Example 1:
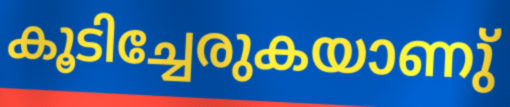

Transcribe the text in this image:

കൂടിച്ചേരുകയാണു്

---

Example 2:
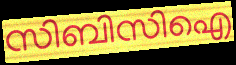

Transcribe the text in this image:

സിബിസിഐ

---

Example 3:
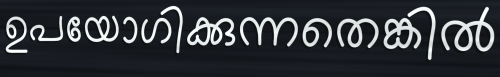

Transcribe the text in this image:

ഉപയോഗിക്കുന്നതെങ്കിൽ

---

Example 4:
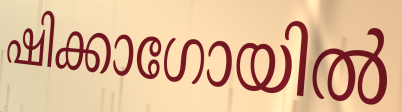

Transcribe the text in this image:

ഷിക്കാഗോയിൽ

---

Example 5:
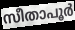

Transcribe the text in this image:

സീതാപൂർ